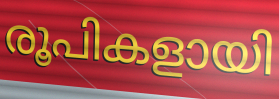
രൂപികളായി